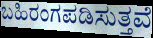
ಬಹಿರಂಗಪಡಿಸುತ್ತವೆ